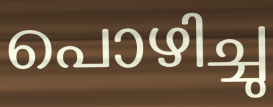
പൊഴിച്ചു